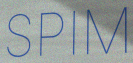
SPIM